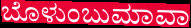
ಬೊಳುಂಬುಮಾವಾ